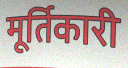
मूर्तिकारी